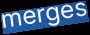
merges